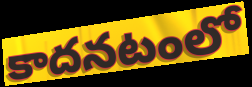
కాదనటంలో